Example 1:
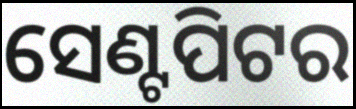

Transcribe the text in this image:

ସେଣ୍ଟପିଟର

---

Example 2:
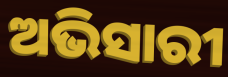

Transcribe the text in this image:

ଅଭିସାରୀ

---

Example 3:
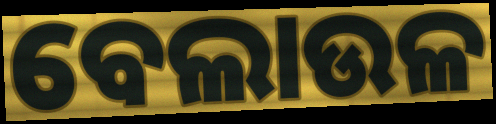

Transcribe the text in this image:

ବେଲାଉଳ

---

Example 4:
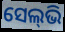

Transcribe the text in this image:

ସେଲ୍‌ଭି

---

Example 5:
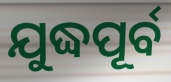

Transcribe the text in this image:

ଯୁଦ୍ଧପୂର୍ବ